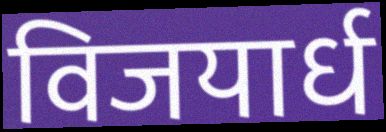
विजयार्ध